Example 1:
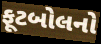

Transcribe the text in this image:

ફૂટબોલનો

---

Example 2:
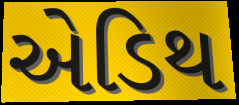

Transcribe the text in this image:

એડિથ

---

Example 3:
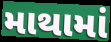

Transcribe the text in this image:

માથામાં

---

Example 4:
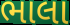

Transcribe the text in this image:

ભાલા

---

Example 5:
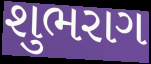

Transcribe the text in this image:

શુભરાગ